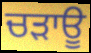
ਚੜਾਊ